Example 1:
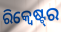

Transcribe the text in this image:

ରିକ୍ୱେଷ୍ଟ୍‌ର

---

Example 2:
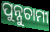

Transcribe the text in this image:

ପୁନ୍ନୁଚାମୀ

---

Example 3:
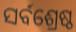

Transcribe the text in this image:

ସର୍ବଶ୍ରେଷ୍ଠ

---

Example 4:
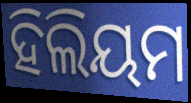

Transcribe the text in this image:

ହିଲିୟମ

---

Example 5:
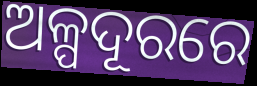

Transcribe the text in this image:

ଅଳ୍ପଦୂରରେ